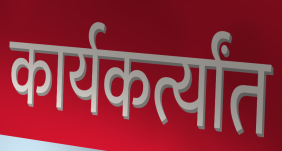
कार्यकर्त्यांत